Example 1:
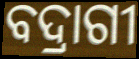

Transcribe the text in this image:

ବଦ୍ରାଗୀ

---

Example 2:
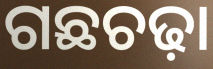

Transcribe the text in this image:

ଗଛଚଢ଼ା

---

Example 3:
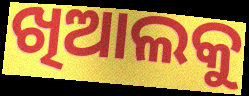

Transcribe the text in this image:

ଖିଆଲକୁ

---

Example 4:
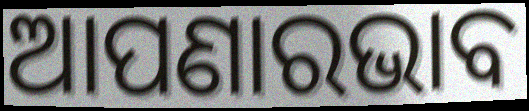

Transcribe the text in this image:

ଆପଣାରଭାବ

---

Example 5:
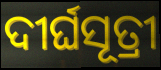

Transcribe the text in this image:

ଦୀର୍ଘସୂତ୍ରୀ